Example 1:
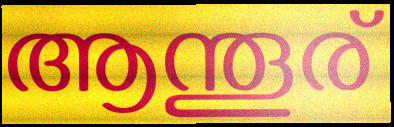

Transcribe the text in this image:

ആന്തൂര്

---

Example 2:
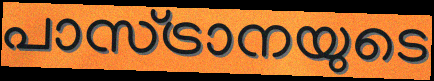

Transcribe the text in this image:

പാസ്ട്രാനയുടെ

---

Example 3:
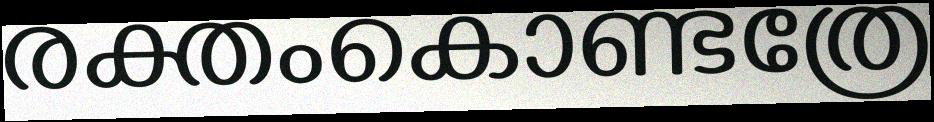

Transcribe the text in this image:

രക്തംകൊണ്ടത്രേ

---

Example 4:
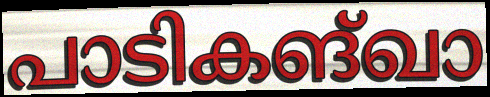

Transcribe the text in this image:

പാടികങ്ഖാ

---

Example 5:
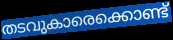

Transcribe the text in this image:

തടവുകാരെക്കൊണ്ട്